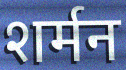
शर्मन